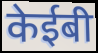
केईबी